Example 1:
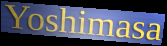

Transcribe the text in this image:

Yoshimasa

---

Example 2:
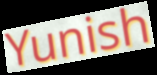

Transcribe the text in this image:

Yunish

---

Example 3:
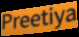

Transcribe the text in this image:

Preetiya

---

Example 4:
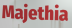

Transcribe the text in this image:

Majethia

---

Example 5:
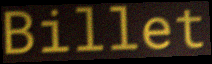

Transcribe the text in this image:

Billet